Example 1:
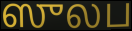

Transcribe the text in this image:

ஸுலப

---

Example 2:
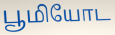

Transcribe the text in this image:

பூமியோட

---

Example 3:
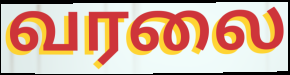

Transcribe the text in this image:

வரலை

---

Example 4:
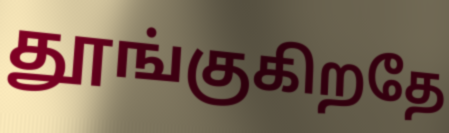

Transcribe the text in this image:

தூங்குகிறதே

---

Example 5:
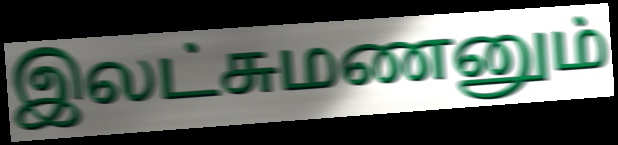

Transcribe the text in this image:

இலட்சுமணனும்